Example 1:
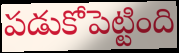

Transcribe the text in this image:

పడుకోపెట్టింది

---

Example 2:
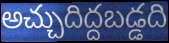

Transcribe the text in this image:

అచ్చుదిద్దబడ్డది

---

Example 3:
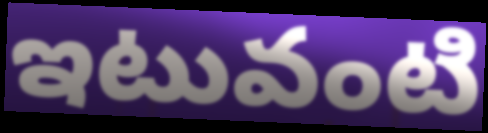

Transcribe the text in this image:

ఇటువంటి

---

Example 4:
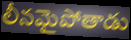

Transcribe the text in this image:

లీనమైపోతాడు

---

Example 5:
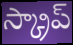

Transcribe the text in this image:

స్క్రాప్